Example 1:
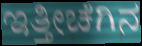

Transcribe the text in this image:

ಇತ್ತೀಚೆಗಿನ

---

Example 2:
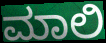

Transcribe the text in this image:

ಮಾಲಿ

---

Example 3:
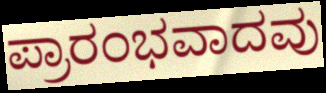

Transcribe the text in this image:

ಪ್ರಾರಂಭವಾದವು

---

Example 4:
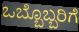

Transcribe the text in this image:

ಒಬ್ಬೊಬ್ಬರಿಗೆ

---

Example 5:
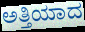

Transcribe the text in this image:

ಅತ್ತಿಯಾದ